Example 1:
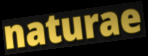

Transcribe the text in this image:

naturae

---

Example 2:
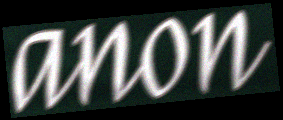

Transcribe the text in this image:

anon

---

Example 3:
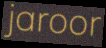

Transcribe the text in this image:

jaroor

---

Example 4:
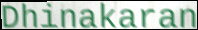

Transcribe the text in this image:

Dhinakaran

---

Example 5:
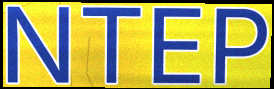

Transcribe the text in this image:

NTEP